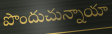
పొందుచున్నాయా